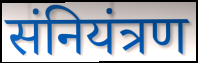
संनियंत्रण